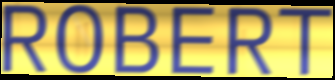
ROBERT